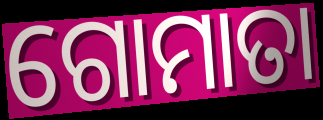
ଗୋମାତା